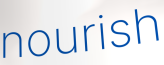
nourish